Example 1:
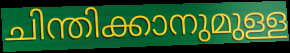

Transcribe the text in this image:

ചിന്തിക്കാനുമുള്ള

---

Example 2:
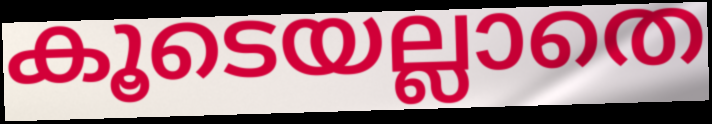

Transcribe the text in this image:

കൂടെയല്ലാതെ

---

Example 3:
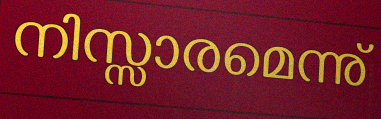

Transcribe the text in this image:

നിസ്സാരമെന്നു്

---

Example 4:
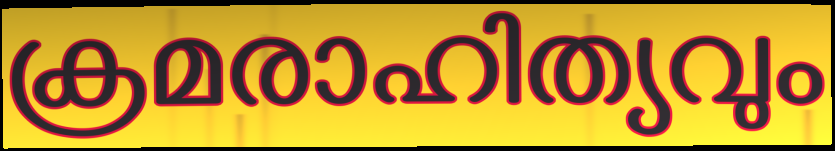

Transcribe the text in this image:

ക്രമരാഹിത്യവും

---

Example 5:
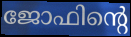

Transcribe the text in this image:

ജോഫിന്റെ